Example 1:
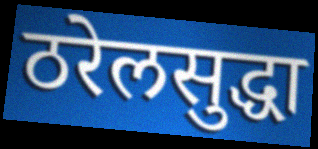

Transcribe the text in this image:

ठरेलसुद्धा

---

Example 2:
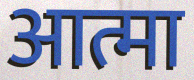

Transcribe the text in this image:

आत्मा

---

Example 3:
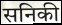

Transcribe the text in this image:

सनिकी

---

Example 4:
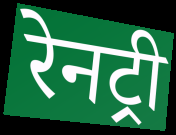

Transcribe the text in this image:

रेनट्री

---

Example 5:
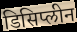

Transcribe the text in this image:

डिसिप्लीन